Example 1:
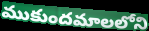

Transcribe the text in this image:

ముకుందమాలలోని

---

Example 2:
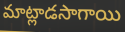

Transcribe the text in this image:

మాట్లాడసాగాయి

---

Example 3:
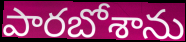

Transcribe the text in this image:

పారబోశాను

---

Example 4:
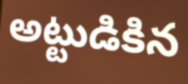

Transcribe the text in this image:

అట్టుడికిన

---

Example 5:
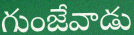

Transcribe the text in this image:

గుంజేవాడు